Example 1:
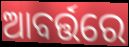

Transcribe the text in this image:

ଆବର୍ତ୍ତରେ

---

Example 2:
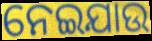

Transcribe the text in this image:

ନେଇଯାଉ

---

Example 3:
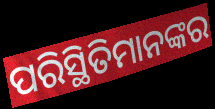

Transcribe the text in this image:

ପରିସ୍ଥିତିମାନଙ୍କର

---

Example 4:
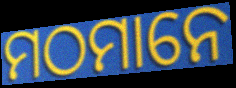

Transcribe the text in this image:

ମଠମାନେ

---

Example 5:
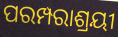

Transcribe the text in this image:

ପରମ୍ପରାଶ୍ରୟୀ